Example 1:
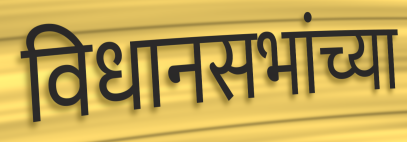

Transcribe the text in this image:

विधानसभांच्या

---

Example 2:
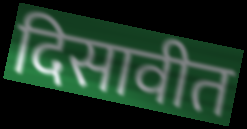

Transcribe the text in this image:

दिसावीत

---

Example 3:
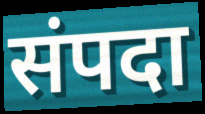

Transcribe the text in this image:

संपदा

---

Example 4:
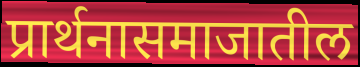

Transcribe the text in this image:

प्रार्थनासमाजातील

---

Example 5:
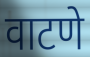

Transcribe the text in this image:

वाटणे